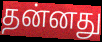
தன்னது